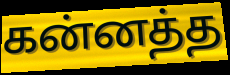
கன்னத்த